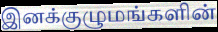
இனக்குழுமங்களின்